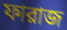
ফারাজ